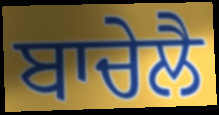
ਬਾਚੇਲੈ